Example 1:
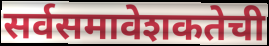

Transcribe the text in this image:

सर्वसमावेशकतेची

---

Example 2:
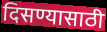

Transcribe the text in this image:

दिसण्यासाठी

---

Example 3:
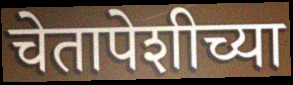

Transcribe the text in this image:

चेतापेशीच्या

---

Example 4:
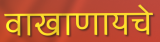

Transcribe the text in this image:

वाखाणायचे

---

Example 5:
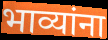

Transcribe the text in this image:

भाव्यांना